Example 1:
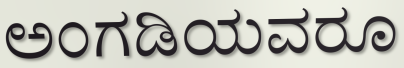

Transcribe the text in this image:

ಅಂಗಡಿಯವರೂ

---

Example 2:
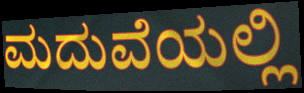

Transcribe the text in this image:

ಮದುವೆಯಲ್ಲಿ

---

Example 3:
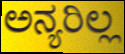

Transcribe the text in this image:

ಅನ್ಯರಿಲ್ಲ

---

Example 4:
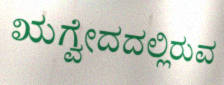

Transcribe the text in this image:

ಋಗ್ವೇದದಲ್ಲಿರುವ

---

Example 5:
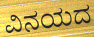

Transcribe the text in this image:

ವಿನಯದ